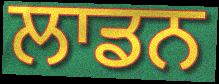
ਲਾਡਨ